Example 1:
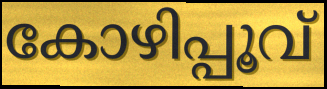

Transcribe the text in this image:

കോഴിപ്പൂവ്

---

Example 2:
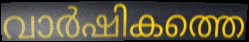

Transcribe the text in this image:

വാർഷികത്തെ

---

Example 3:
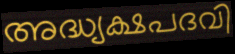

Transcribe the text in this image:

അദ്ധ്യക്ഷപദവി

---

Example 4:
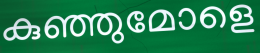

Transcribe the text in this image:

കുഞ്ഞുമോളെ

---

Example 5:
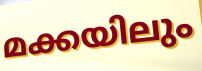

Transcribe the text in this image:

മക്കയിലും